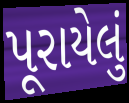
પૂરાયેલું